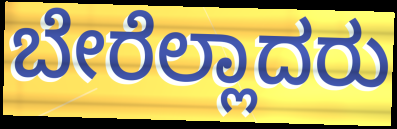
ಬೇರೆಲ್ಲಾದರು